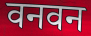
वनवन